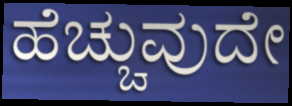
ಹೆಚ್ಚುವುದೇ